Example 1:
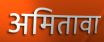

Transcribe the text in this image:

अमितावा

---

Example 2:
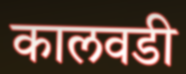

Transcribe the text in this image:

कालवडी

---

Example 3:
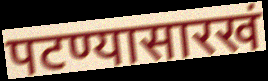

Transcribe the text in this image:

पटण्यासारखं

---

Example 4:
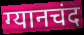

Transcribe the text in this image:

ग्यानचंद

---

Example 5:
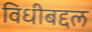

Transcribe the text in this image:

विधीबद्दल